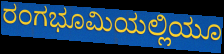
ರಂಗಭೂಮಿಯಲ್ಲಿಯೂ